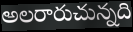
అలరారుచున్నది